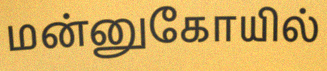
மன்னுகோயில்